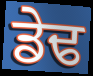
ਡੇਢ